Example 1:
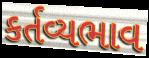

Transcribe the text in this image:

કર્તવ્યભાવ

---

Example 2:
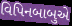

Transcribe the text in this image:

વિપિનબાબુએ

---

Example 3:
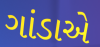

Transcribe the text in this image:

ગાંડાએ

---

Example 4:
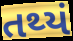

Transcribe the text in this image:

તથ્યં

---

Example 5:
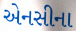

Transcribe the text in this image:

એનસીના